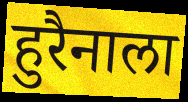
हुरैनाला